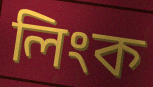
লিংক